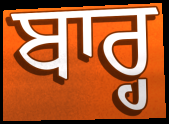
ਬਾਰ੍ਹ